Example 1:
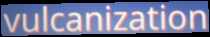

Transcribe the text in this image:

vulcanization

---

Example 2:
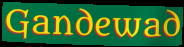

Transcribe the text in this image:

Gandewad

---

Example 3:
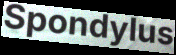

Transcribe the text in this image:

Spondylus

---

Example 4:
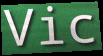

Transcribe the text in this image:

Vic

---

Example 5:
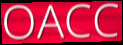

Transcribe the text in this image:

OACC